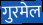
गुरमेल